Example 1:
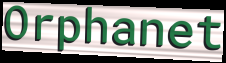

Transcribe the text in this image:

Orphanet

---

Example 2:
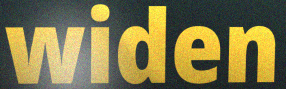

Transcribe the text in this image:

widen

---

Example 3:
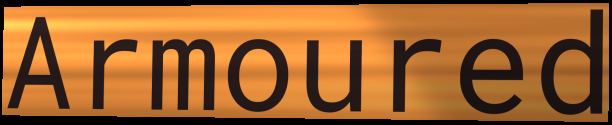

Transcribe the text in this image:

Armoured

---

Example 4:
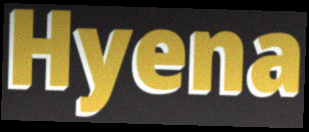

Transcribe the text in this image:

Hyena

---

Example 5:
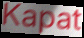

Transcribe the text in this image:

Kapat